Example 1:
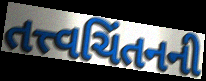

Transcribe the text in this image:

તત્ત્વચિંતનની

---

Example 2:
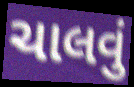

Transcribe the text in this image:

ચાલવું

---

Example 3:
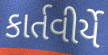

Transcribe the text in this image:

કાર્તવીર્યે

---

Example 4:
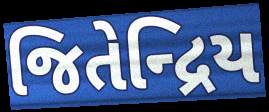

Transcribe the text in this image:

જિતેન્દ્રિય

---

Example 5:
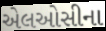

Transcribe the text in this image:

એલઓસીના